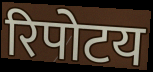
रिपोटय